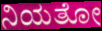
ನಿಯತೋ